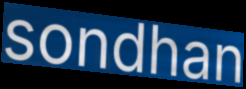
sondhan